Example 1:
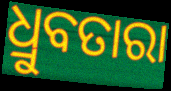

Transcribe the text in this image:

ଧ୍ରୁବତାରା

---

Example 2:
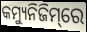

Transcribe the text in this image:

କମ୍ୟୁନିଜିମ୍‌ରେ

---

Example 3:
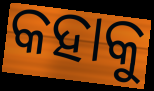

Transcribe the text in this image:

କହାକୁ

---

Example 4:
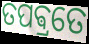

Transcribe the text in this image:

ତପଵ୍ରତେ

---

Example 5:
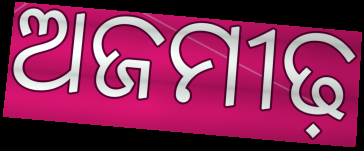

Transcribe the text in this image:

ଅଜମୀଢ଼